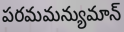
పరమమన్యుమాన్